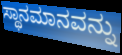
ಸ್ಥಾನಮಾನವನ್ನು